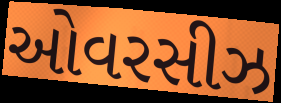
ઓવરસીઝ